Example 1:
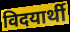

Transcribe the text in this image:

विदयार्थी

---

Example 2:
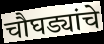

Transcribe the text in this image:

चौघड्यांचे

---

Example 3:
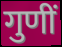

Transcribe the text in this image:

गुणीं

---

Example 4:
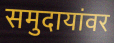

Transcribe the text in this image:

समुदायांवर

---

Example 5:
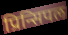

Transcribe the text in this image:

प्रिन्सिपल